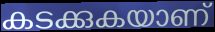
കടക്കുകയാണ്